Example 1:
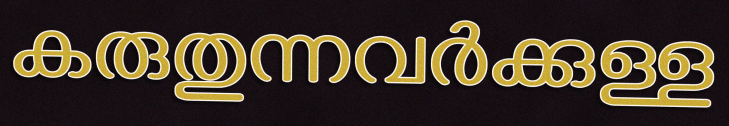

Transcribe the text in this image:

കരുതുന്നവർക്കുള്ള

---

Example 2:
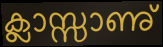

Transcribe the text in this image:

ക്ലാസ്സാണു്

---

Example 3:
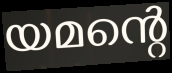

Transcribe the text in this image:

യമന്റെ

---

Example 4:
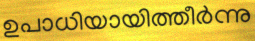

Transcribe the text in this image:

ഉപാധിയായിത്തീർന്നു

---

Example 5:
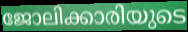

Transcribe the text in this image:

ജോലിക്കാരിയുടെ